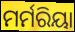
ମର୍ମରିୟା